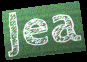
Jea